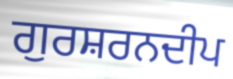
ਗੁਰਸ਼ਰਨਦੀਪ